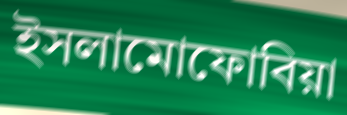
ইসলামোফোবিয়া